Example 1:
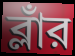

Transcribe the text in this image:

ব্লাঁর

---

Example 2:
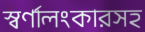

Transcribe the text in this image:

স্বর্ণালংকারসহ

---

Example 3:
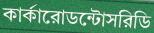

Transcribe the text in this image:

কার্কারোডন্টোসরিডি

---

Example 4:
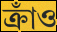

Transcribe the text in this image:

ক্রাঁও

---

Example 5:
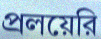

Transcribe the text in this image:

প্রলয়েরি